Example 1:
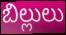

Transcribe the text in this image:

బిల్లులు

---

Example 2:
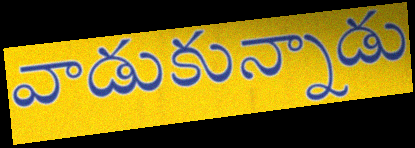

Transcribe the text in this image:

వాడుకున్నాడు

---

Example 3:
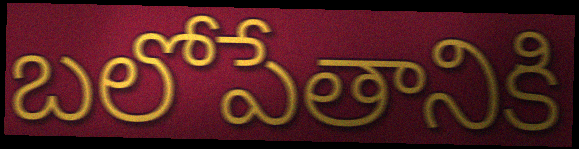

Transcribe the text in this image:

బలోపేతానికి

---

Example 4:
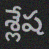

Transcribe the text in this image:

శ్లేష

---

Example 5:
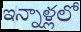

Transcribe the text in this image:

ఇన్నాళ్లలో